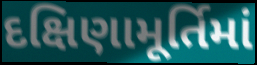
દક્ષિણામૂર્તિમાં